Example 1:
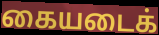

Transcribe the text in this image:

கையடைக்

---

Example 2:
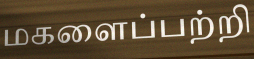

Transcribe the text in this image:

மகளைப்பற்றி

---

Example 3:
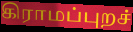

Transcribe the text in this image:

கிராமப்புறச்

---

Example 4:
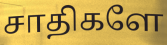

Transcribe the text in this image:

சாதிகளே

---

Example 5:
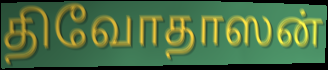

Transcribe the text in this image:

திவோதாஸன்